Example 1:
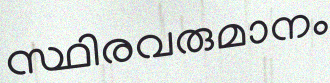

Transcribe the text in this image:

സ്ഥിരവരുമാനം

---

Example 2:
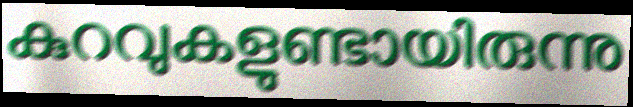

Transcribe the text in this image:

കുറവുകളുണ്ടായിരുന്നു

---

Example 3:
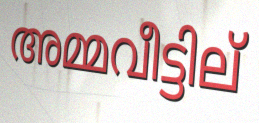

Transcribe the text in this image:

അമ്മവീട്ടില്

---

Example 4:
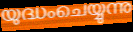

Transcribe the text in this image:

യുദ്ധംചെയ്യുന്നു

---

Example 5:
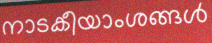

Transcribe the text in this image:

നാടകീയാംശങ്ങൾ